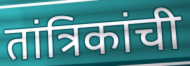
तांत्रिकांची